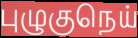
புழுகுநெய்